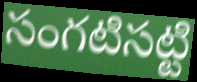
సంగటిసట్టి